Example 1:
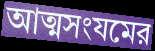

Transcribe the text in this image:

আত্মসংযমের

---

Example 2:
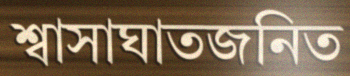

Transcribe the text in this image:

শ্বাসাঘাতজনিত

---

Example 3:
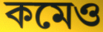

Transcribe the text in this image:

কমেও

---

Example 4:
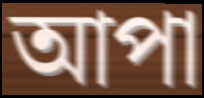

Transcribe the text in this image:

আপা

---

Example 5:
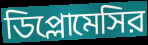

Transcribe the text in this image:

ডিপ্লোমেসির